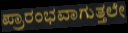
ಪ್ರಾರಂಭವಾಗುತ್ತಲೇ